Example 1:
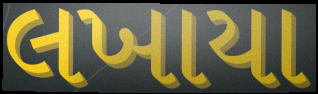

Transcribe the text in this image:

લખાયા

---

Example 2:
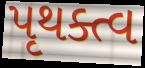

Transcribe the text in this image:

પૃથક્ત્વ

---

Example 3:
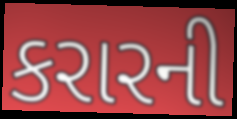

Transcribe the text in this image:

કરારની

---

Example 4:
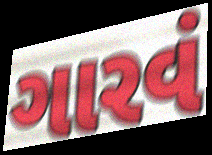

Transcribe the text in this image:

ગારવં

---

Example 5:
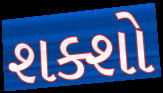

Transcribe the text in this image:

શક્શો